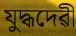
যুদ্ধদেৱী